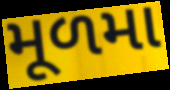
મૂળમા